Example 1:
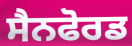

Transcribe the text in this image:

ਸੈਨਫੋਰਡ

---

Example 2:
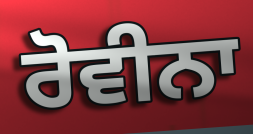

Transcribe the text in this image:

ਰੋਵੀਨਾ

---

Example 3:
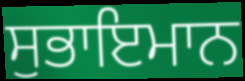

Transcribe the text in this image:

ਸੁਭਾਇਮਾਨ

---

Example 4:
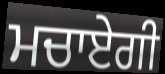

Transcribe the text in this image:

ਮਚਾਏਗੀ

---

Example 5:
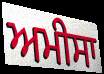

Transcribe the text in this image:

ਅਮੀਸਾ